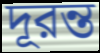
দূরন্ত